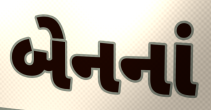
બેનનાં